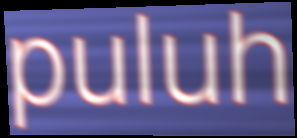
puluh